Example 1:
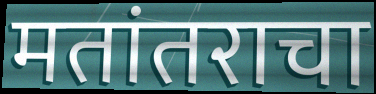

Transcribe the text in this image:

मतांतराचा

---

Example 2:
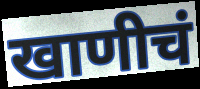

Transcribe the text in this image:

खाणीचं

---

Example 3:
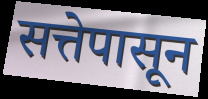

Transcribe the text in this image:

सत्तेपासून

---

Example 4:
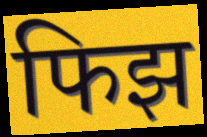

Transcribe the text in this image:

फिझ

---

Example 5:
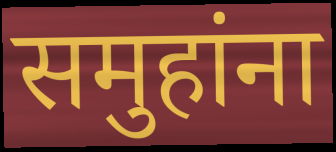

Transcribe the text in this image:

समुहांना